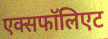
एक्सफॉलिएट